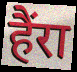
हैंरा